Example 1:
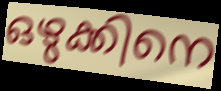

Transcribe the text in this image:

ഒഴുക്കിനെ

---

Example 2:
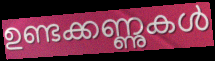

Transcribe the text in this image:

ഉണ്ടക്കണ്ണുകൾ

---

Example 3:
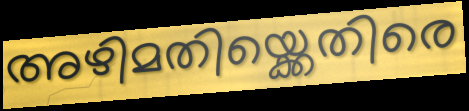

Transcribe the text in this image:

അഴിമതിയ്ക്കെതിരെ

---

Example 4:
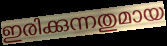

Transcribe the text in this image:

ഇരിക്കുന്നതുമായ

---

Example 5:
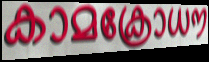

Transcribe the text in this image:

കാമക്രോധൗ